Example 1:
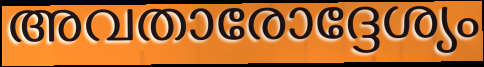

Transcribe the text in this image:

അവതാരോദ്ദേശ്യം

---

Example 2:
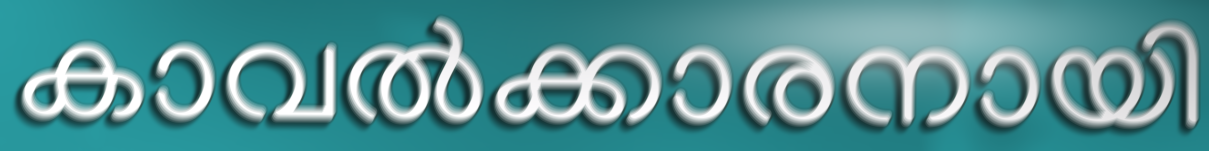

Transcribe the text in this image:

കാവൽക്കാരനായി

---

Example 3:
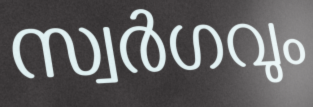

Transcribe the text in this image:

സ്വർഗവും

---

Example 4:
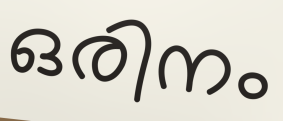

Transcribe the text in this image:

ഒരിനം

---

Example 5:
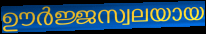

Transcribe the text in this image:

ഊർജ്ജസ്വലയായ